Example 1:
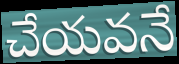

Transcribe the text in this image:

చేయవనే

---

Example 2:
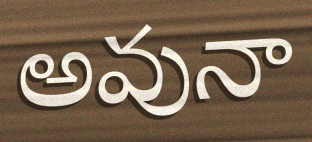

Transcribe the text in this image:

అవునా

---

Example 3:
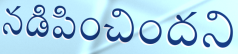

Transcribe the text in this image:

నడిపించిందని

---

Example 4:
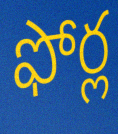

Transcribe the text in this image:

ఫోర్ల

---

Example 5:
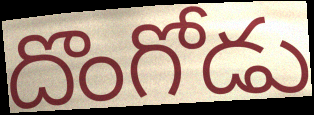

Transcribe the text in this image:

దొంగోడు